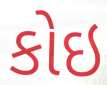
કોઇ